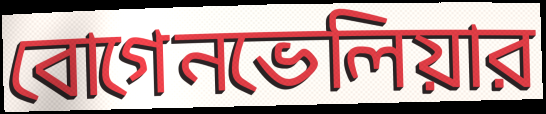
বোগেনভেলিয়ার